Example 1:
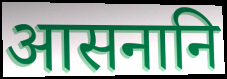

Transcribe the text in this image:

आसनानि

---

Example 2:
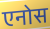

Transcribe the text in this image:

एनोस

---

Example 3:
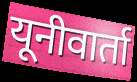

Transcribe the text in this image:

यूनीवार्ता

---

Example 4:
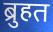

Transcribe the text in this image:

ब्रुहत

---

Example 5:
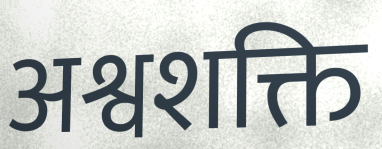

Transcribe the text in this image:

अश्वशक्ति